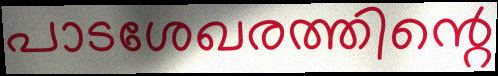
പാടശേഖരത്തിന്റെ